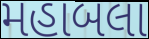
મહાબલા